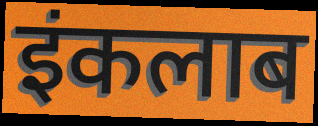
इंकलाब